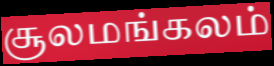
சூலமங்கலம்